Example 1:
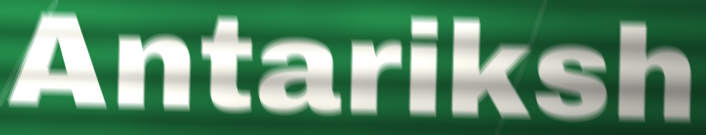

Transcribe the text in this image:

Antariksh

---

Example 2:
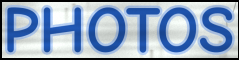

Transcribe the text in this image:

PHOTOS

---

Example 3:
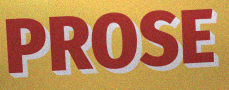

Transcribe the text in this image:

PROSE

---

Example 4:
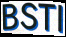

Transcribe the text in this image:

BSTI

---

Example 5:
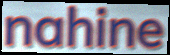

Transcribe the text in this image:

nahine